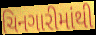
ચિનગારીમાંથી